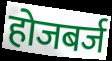
होजबर्ज